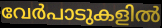
വേർപാടുകളിൽ